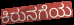
ಕಿರುನಗೆಯ